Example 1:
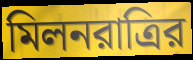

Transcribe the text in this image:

মিলনরাত্রির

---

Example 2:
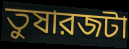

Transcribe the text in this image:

তুষারজটা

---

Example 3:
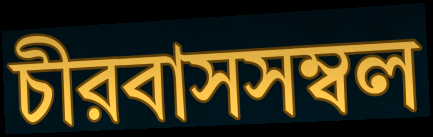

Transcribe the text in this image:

চীরবাসসম্বল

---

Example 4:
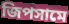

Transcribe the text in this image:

জিপসামে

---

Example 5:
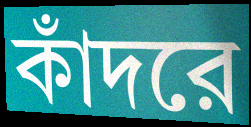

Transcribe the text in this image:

কাঁদরে